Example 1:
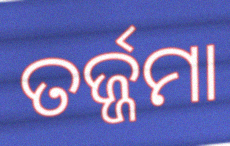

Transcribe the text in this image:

ତର୍ଜ୍ଜମା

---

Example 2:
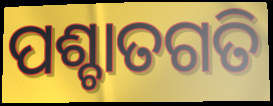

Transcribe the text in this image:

ପଶ୍ଚାତଗତି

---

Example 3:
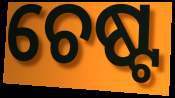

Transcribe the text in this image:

ଚେଷ୍ଟ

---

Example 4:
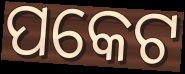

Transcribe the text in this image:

ପକେଟ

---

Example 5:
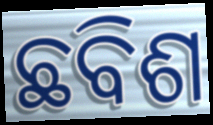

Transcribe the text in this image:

ଛବିଶ